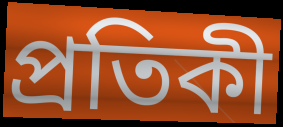
প্ৰতিকী